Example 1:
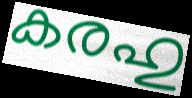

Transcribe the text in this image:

കരഹു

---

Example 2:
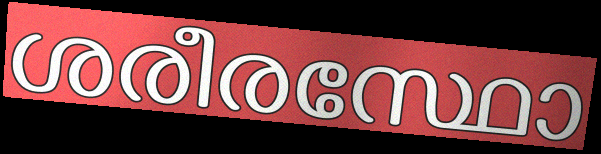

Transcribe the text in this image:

ശരീരസ്ഥോ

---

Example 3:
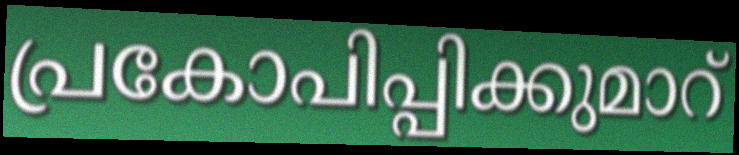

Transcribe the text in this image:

പ്രകോപിപ്പിക്കുമാറ്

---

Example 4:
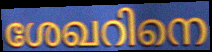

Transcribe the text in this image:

ശേഖറിനെ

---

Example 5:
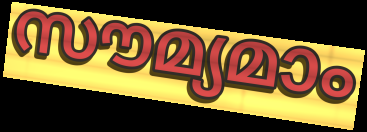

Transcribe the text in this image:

സൗമ്യമാം